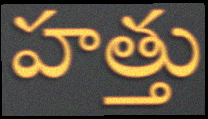
హత్తు